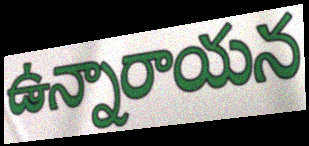
ఉన్నారాయన